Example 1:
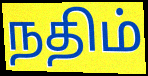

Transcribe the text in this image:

நதிம்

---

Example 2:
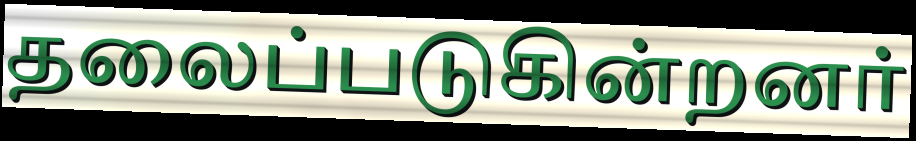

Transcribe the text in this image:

தலைப்படுகின்றனர்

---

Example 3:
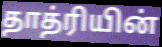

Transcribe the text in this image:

தாத்ரியின்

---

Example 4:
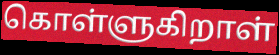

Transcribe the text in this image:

கொள்ளுகிறாள்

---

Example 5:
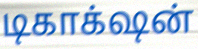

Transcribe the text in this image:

டிகாக்‌ஷன்